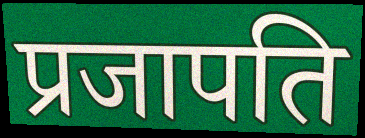
प्रजापति